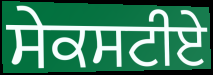
ਸੇਕਸਟੀਏ